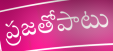
ప్రజతోపాటు